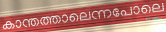
കാന്തത്താലെന്നപോലെ